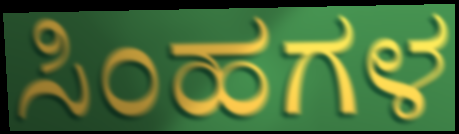
ಸಿಂಹಗಳ